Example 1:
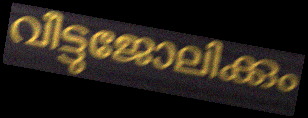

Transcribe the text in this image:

വീട്ടുജോലിക്കും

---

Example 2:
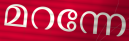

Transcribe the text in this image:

മറന്നേ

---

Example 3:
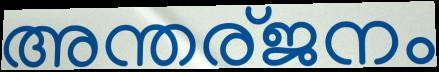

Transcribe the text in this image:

അന്തര്ജനം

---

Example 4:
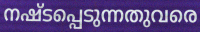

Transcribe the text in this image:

നഷ്ടപ്പെടുന്നതുവരെ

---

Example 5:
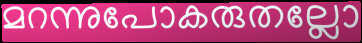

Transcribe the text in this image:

മറന്നുപോകരുതല്ലോ